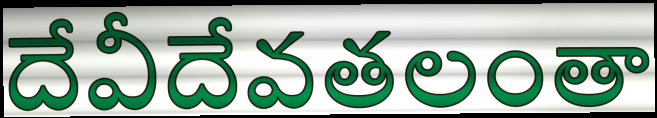
దేవీదేవతలంతా